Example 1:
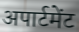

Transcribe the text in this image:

अपार्टमेंट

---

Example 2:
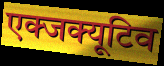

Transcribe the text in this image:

एक्जक्यूटिव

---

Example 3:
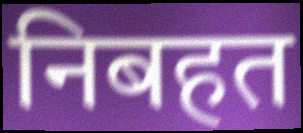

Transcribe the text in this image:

निबहत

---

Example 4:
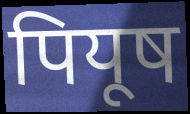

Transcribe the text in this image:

पियूष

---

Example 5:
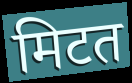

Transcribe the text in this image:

मिटत